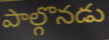
పాల్గొనడు